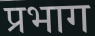
प्रभाग